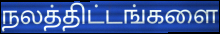
நலத்திட்டங்களை